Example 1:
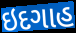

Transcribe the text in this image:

ઇદગાહ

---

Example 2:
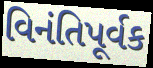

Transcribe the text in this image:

વિનંતિપૂર્વક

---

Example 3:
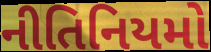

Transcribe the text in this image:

નીતિનિયમો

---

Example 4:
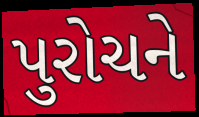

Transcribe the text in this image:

પુરોચને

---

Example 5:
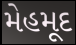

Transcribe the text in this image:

મેહમૂદ